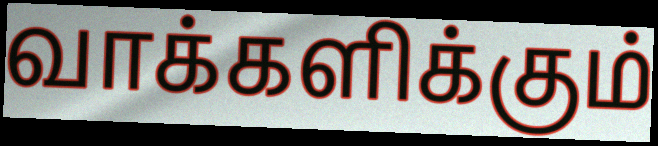
வாக்களிக்கும்